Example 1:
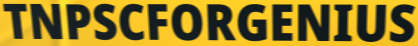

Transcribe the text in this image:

TNPSCFORGENIUS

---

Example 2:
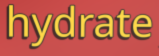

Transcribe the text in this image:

hydrate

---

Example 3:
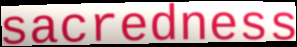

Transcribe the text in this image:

sacredness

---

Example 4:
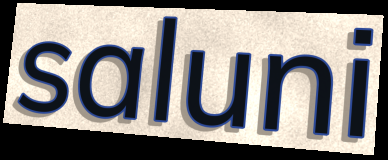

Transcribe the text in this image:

saluni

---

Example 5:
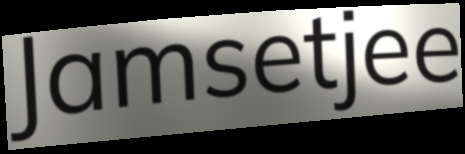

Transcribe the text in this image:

Jamsetjee